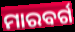
ମାରବର୍ଗ